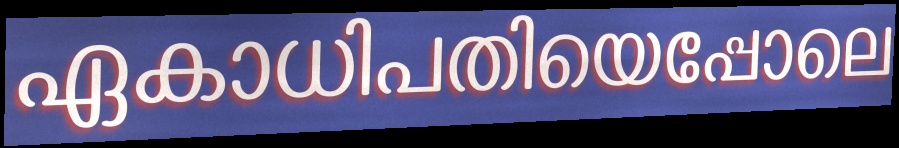
ഏകാധിപതിയെപ്പോലെ